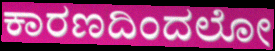
ಕಾರಣದಿಂದಲೋ